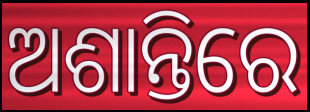
ଅଶାନ୍ତିରେ